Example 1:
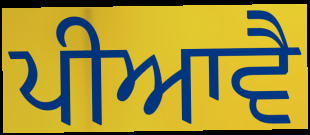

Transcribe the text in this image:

ਪੀਆਵੈ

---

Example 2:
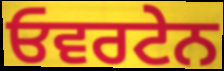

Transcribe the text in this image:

ਓਵਰਟੇਨ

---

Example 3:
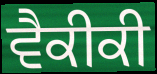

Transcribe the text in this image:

ਵੈਕੀਕੀ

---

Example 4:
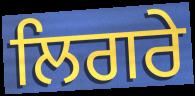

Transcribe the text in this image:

ਲਿਗਰੇ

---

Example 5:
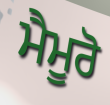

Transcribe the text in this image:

ਮੈਮੂਰੋ